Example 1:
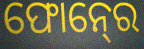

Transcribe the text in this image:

ଫୋନ୍‍ରେ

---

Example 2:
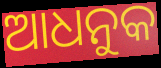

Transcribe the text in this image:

ଆଧନୁକ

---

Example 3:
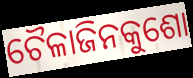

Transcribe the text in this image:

ଚୈଳାଜିନକୁଶୋ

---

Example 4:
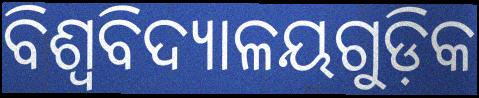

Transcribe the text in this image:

ବିଶ୍ଵବିଦ୍ୟାଳୟଗୁଡ଼ିକ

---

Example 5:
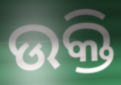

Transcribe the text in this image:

ଉକ୍ତି